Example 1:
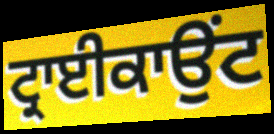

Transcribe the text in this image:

ਟ੍ਰਾਈਕਾਉਂਟ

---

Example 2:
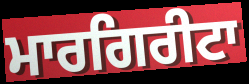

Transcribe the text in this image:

ਮਾਰਗਿਰੀਟਾ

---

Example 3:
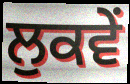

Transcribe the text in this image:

ਲੁਕਵੇਂ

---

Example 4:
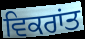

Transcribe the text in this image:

ਵਿਕਰਾਂਤ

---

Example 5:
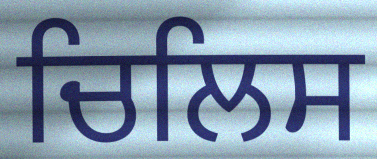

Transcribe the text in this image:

ਚਿਲਿਸ